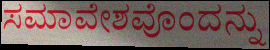
ಸಮಾವೇಶವೊಂದನ್ನು